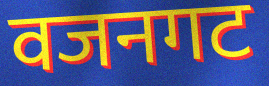
वजनगट